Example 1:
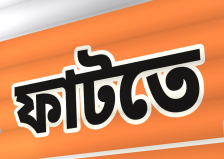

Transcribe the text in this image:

ফাটতে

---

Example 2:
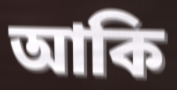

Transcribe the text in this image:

আকি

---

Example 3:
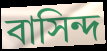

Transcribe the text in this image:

বাসিন্দ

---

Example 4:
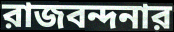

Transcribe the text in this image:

রাজবন্দনার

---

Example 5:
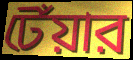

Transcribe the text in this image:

টেঁয়ার